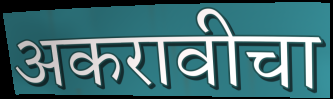
अकरावीचा